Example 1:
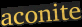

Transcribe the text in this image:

aconite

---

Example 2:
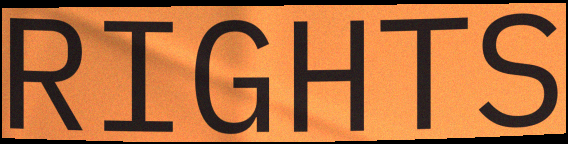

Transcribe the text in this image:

RIGHTS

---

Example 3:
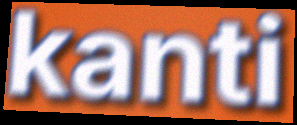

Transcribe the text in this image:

kanti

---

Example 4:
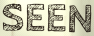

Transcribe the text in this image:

SEEN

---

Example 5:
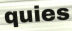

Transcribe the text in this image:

quies